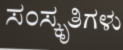
ಸಂಸ್ಕೃತಿಗಳು